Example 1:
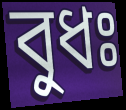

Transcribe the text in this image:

বুধঃ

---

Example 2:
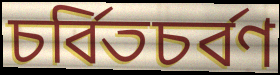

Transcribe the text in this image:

চর্বিতচর্বণ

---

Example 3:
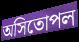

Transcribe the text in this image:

অসিতোপল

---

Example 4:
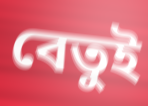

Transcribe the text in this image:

বেতুই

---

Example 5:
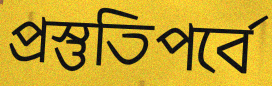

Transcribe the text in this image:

প্রস্তুতিপর্বে